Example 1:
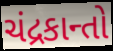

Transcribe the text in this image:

ચંદ્રકાન્તો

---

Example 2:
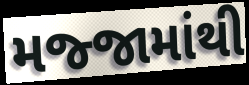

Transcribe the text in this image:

મજ્જામાંથી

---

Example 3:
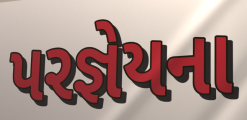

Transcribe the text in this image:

પરજ્ઞેયના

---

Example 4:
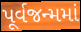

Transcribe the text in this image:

પૂર્વજન્મમાં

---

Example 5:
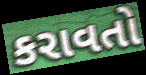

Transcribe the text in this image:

કરાવતો